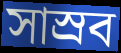
সাস্রব